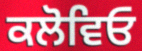
ਕਲੋਵਿਓ